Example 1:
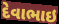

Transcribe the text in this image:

દેવાભાઇ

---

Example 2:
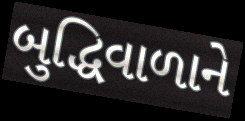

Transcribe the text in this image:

બુદ્ધિવાળાને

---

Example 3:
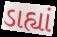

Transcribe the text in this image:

ડાહ્યાં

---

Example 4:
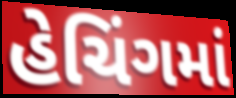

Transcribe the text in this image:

હેચિંગમાં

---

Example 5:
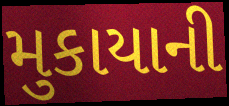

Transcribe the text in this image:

મુકાયાની